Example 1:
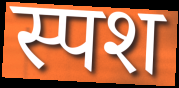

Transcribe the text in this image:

स्पश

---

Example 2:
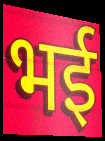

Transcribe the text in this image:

भई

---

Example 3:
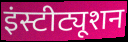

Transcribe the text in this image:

इंस्टीट्यूशन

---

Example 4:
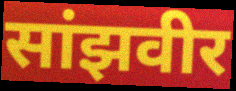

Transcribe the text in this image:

सांझवीर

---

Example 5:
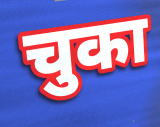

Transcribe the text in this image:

चुका